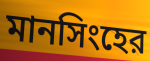
মানসিংহের